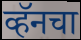
व्हॅनचा